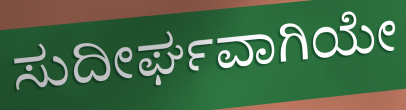
ಸುದೀರ್ಘವಾಗಿಯೇ